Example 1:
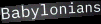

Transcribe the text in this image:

Babylonians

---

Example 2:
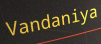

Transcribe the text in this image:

Vandaniya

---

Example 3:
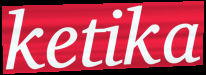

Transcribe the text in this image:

ketika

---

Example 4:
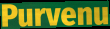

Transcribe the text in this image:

Purvenu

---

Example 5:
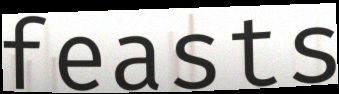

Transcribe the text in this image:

feasts